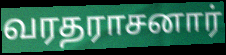
வரதராசனார்